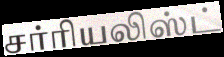
சர்ரியலிஸ்ட்